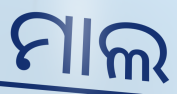
ମାଲ